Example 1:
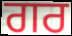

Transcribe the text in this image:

ਗਰ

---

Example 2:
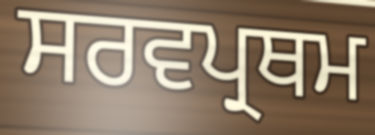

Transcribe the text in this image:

ਸਰਵਪ੍ਰਥਮ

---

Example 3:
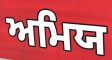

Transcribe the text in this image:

ਅਮਿਯ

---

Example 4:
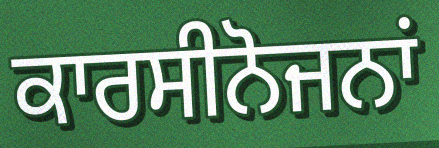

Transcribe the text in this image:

ਕਾਰਸੀਨੋਜਨਾਂ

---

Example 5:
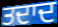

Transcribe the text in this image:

ਤਦਾਦ